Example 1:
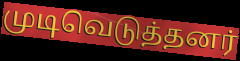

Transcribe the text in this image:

முடிவெடுத்தனர்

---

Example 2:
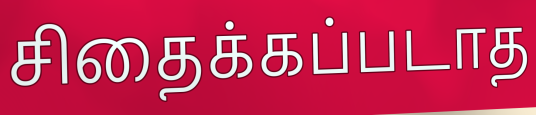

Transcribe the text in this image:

சிதைக்கப்படாத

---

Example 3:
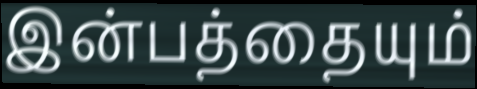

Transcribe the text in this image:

இன்பத்தையும்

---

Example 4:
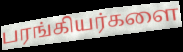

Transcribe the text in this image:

பரங்கியர்களை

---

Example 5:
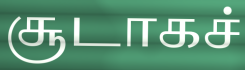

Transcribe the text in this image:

சூடாகச்